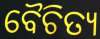
ବୈଚିତ୍ୟ